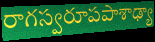
రాగస్వరూపపాశాఢ్యా